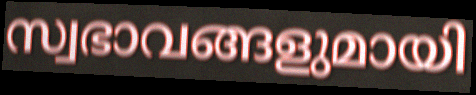
സ്വഭാവങ്ങളുമായി